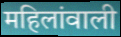
महिलांवाली